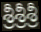
శ్రీశ్రీశ్రీ